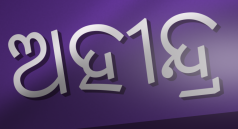
ଅହୀନ୍ଦ୍ର